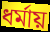
ধর্মায়